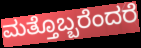
ಮತ್ತೊಬ್ಬರೆಂದರೆ